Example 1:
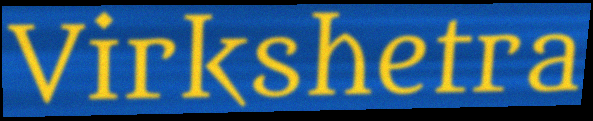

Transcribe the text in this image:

Virkshetra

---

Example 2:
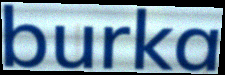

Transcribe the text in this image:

burka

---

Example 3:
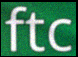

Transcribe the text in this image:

ftc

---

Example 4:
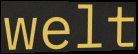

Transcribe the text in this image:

welt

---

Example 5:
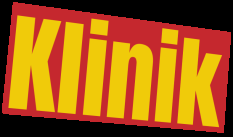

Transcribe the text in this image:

Klinik